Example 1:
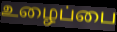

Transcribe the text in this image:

உழைப்பை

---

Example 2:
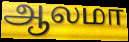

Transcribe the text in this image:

ஆலமா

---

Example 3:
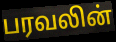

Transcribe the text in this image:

பரவலின்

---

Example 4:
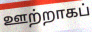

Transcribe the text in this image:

ஊற்றாகப்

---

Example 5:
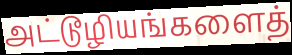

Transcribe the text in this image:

அட்டூழியங்களைத்